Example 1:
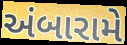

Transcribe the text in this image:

અંબારામે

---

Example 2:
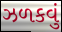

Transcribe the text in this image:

ઝળકવું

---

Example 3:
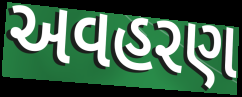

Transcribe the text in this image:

અવહરણ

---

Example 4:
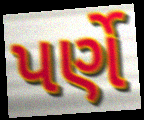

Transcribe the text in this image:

પર્ણે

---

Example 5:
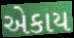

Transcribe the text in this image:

એકાય